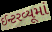
ઈન્ટરવ્યૂમાં